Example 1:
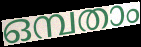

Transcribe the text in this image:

ഒമ്പതാം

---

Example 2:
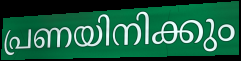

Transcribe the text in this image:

പ്രണയിനിക്കും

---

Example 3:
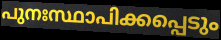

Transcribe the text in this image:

പുനഃസ്ഥാപിക്കപ്പെടും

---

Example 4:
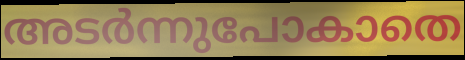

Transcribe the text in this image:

അടർന്നുപോകാതെ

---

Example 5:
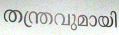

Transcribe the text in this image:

തന്ത്രവുമായി